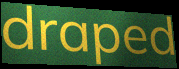
draped